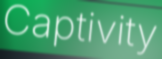
Captivity